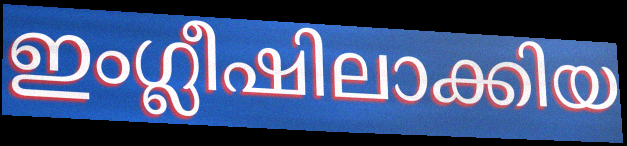
ഇംഗ്ലീഷിലാക്കിയ